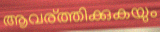
ആവര്ത്തിക്കുകയും